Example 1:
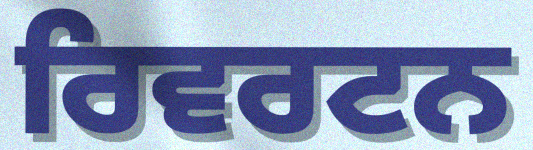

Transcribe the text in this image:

ਰਿਵਰਟਨ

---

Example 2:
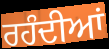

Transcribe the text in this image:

ਰਹੰਦੀਆਂ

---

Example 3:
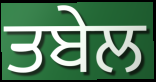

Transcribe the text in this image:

ਤਬੇਲ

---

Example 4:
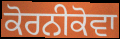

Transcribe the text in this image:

ਕੋਰਨੀਕੋਵਾ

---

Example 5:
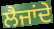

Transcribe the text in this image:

ਲੈਜਾਂਦੇ